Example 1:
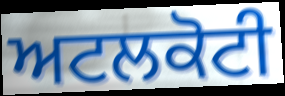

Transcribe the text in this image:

ਅਟਲਕੋਟੀ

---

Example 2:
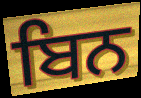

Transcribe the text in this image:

ਬਿਨ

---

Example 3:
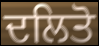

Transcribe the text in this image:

ਦਲਿਤੋ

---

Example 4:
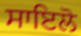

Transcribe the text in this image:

ਸਾਇਲੋ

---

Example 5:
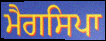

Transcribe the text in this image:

ਮੈਗਸਿਪਾ